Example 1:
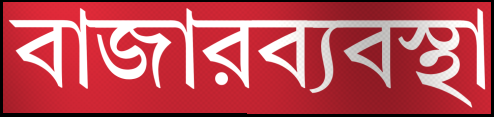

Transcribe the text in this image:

বাজারব্যবস্থা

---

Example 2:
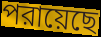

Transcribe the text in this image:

পরায়েছে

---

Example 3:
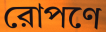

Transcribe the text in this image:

রোপণে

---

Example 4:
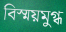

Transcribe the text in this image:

বিস্ময়মুগ্ধ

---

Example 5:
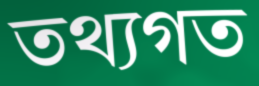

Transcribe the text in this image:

তথ্যগত